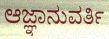
ಆಜ್ಞಾನುವರ್ತಿ